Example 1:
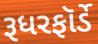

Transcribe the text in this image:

રૂધરફૉર્ડે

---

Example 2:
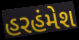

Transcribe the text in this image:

હરહંમેશ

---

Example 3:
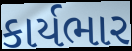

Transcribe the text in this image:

કાર્યભાર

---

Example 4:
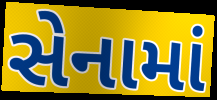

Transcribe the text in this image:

સેનામાં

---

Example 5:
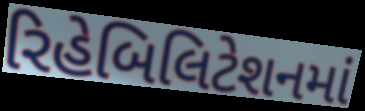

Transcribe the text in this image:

રિહેબિલિટેશનમાં